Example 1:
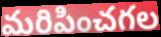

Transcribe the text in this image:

మరిపించగల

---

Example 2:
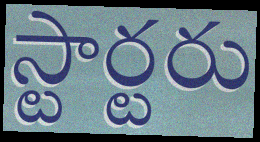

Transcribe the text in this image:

స్టార్టరు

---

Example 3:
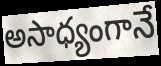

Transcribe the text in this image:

అసాధ్యంగానే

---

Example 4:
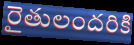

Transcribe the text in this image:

రైతులందరికి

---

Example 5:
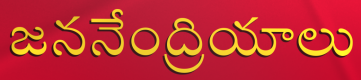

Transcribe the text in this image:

జననేంద్రియాలు